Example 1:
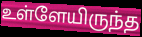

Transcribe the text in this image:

உள்ளேயிருந்த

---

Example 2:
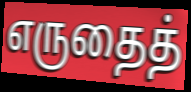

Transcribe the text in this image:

எருதைத்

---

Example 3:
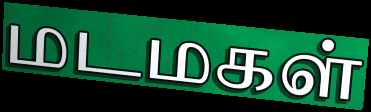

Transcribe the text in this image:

மடமகள்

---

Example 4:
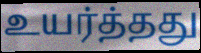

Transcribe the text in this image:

உயர்த்தது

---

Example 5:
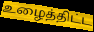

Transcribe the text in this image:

உழைத்திட்ட